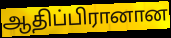
ஆதிப்பிரானான